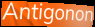
Antigonon